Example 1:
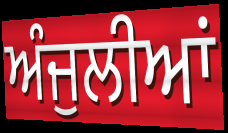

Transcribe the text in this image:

ਅੰਜੁਲੀਆਂ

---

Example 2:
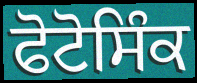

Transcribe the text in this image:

ਫੋਟੋਸਿੰਕ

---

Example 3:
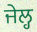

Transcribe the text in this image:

ਜੇਲ੍ਹ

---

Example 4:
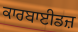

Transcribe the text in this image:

ਕਾਰਬਾਈਡਜ਼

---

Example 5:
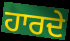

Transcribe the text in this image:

ਹਾਰਦੇ